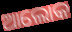
ଆଲୋକ